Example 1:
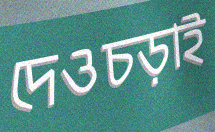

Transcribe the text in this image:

দেওচড়াই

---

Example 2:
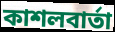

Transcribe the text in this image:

কাশলবার্তা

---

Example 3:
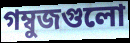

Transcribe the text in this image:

গম্বুজগুলো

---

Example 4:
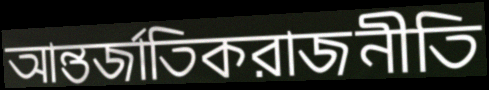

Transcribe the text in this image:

আন্তর্জাতিকরাজনীতি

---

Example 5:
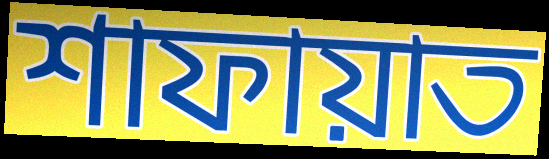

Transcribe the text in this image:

শাফায়াত